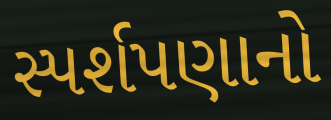
સ્પર્શપણાનો